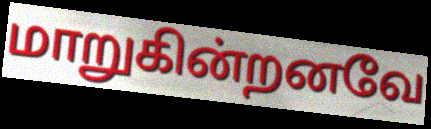
மாறுகின்றனவே